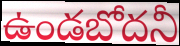
ఉండబోదనీ